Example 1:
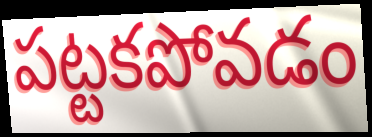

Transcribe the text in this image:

పట్టకపోవడం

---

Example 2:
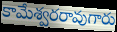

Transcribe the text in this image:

కామేశ్వరరావుగారు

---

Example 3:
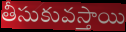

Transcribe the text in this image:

తీసుకువస్తాయి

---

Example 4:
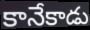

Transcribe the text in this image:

కానేకాడు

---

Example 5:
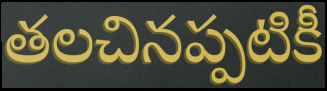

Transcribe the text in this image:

తలచినప్పటికీ